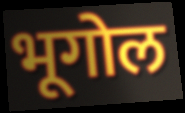
भूगोल